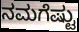
ನಮಗೆಷ್ಟು